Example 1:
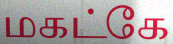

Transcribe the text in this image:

மகட்கே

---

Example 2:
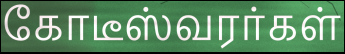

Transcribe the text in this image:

கோடீஸ்வரர்கள்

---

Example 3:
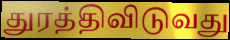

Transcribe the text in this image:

துரத்திவிடுவது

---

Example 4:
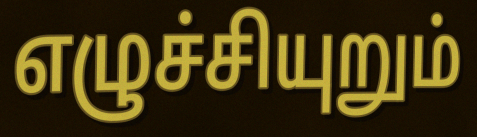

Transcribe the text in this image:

எழுச்சியுறும்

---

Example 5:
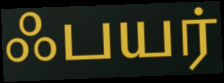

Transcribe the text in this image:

ஃபயர்